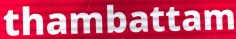
thambattam